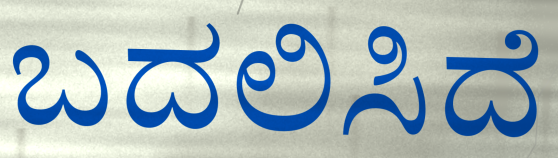
ಬದಲಿಸಿದೆ